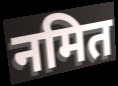
नमित